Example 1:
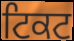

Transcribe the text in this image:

ਟਿਕਟ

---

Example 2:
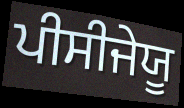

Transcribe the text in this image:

ਪੀਸੀਜੇਯੂ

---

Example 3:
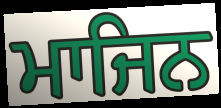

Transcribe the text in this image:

ਮਾਜਿਨ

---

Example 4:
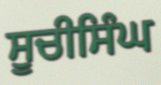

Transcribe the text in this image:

ਸੂਚੀਸਿੰਘ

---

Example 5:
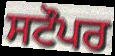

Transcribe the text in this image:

ਸਟੌਪਰ